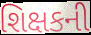
શિક્ષકની